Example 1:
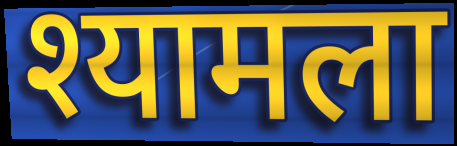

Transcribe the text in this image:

श्यामला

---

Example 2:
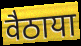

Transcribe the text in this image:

वैठाया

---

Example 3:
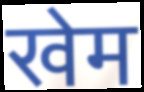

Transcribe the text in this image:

खेम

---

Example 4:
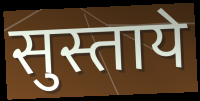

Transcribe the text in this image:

सुस्ताये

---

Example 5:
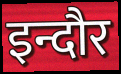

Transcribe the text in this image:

इन्दौर